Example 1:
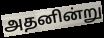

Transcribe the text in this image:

அதனின்று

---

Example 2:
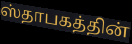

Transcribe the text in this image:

ஸ்தாபகத்தின்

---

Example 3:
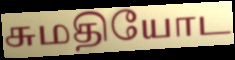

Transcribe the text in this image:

சுமதியோட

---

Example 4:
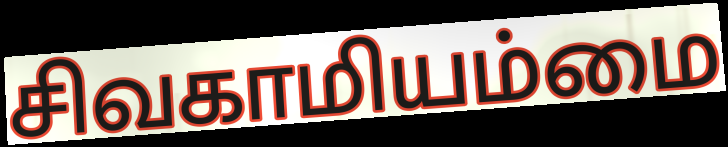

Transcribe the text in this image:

சிவகாமியம்மை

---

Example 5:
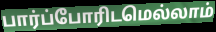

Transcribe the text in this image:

பார்ப்போரிடமெல்லாம்